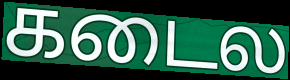
கடைல